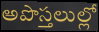
అపొస్తలుల్లో